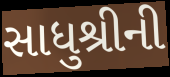
સાધુશ્રીની